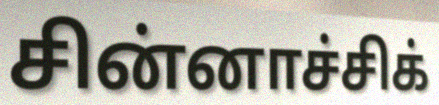
சின்னாச்சிக்